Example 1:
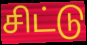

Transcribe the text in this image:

சிட்டு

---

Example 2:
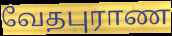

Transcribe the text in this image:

வேதபுராண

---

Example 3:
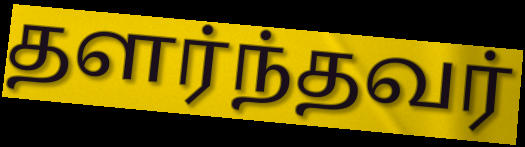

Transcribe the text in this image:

தளர்ந்தவர்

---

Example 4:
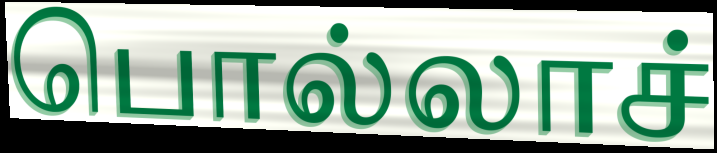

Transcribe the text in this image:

பொல்லாச்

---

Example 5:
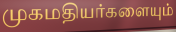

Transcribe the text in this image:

முகமதியர்களையும்